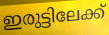
ഇരുട്ടിലേക്ക്